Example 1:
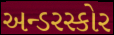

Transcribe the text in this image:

અન્ડરસ્કોર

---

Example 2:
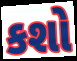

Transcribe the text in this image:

કશો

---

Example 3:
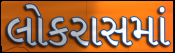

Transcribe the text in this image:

લોકરાસમાં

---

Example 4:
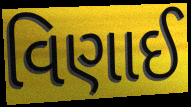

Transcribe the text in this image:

વિણાઈ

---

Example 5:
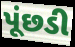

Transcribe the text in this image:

પૂંછડી